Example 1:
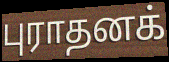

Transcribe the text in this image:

புராதனக்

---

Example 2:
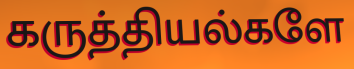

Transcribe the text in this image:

கருத்தியல்களே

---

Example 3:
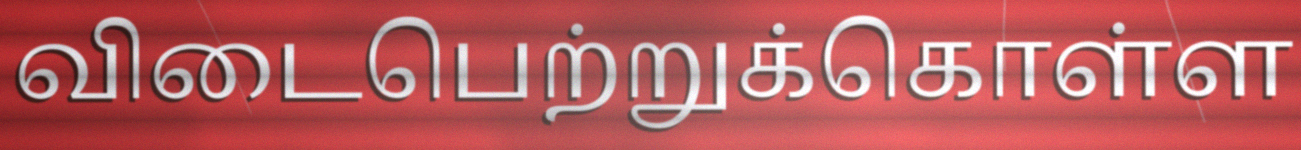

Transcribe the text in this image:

விடைபெற்றுக்கொள்ள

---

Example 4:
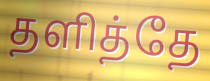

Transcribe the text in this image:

தளித்தே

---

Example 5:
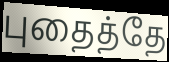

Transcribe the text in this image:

புதைத்தே